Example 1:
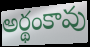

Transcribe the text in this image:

అర్థంకావు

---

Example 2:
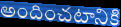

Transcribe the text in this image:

అందించటానికి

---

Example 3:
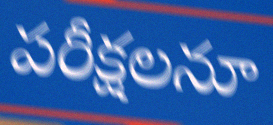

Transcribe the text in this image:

పరీక్షలనూ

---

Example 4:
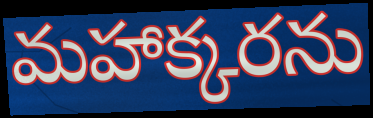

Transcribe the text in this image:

మహాక్కరను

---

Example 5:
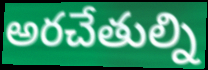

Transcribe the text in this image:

అరచేతుల్ని